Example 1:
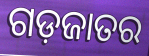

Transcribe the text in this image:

ଗଡ଼ଜାତର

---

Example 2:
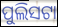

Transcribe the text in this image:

ପୁଲିସଟା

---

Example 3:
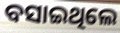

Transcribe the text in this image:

ବସାଇଥିଲେ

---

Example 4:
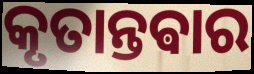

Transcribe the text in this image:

କୃତାନ୍ତଵାର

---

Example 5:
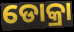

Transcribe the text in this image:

ଡୋକ୍ରା